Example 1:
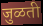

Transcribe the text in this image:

जुळती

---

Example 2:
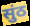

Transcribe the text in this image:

सुंठ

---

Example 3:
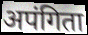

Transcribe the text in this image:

अपंगिता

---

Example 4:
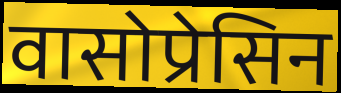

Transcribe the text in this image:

वासोप्रेसिन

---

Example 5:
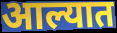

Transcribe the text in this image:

आल्यात